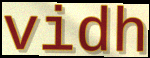
vidh